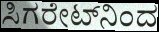
ಸಿಗರೇಟ್‌ನಿಂದ